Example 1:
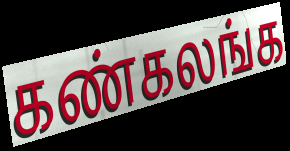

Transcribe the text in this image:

கண்கலங்க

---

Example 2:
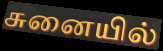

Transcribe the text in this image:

சுனையில்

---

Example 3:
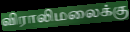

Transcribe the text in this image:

விராலிமலைக்கு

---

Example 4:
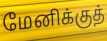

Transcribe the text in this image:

மேனிக்குத்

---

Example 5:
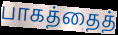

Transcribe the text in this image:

பாகத்தைத்